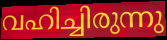
വഹിച്ചിരുന്നു